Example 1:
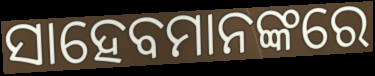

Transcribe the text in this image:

ସାହେବମାନଙ୍କରେ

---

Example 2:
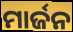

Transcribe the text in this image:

ମାର୍ଜନ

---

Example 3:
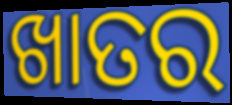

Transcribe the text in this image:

ଖାତର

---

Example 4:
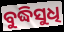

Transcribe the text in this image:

ବୁଦ୍ଧିସୁଧି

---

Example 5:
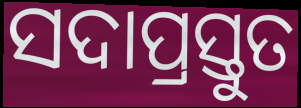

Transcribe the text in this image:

ସଦାପ୍ରସ୍ତୁତ